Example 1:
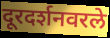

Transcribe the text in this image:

दूरदर्शनवरले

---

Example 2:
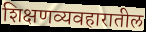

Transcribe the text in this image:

शिक्षणव्यवहारातील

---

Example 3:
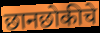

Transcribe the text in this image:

छानछोकीचे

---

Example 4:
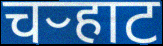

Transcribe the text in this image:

चऱ्हाट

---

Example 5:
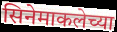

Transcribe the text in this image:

सिनेमाकलेच्या